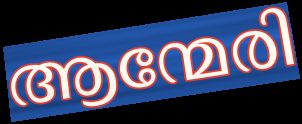
ആന്മേരി